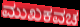
ಮುಖಕವಚ